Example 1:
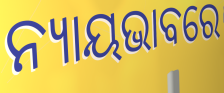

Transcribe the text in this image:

ନ୍ୟାୟଭାବରେ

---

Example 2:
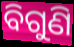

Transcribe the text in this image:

ବିଗୁଣି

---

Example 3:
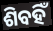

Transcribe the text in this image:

ଶିବହିଁ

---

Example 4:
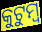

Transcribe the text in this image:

କୁଟୁମ୍ଵ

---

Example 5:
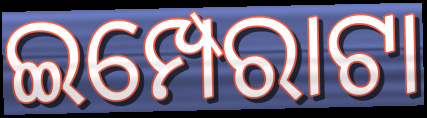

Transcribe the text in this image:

ଇମ୍ପେରାଟା